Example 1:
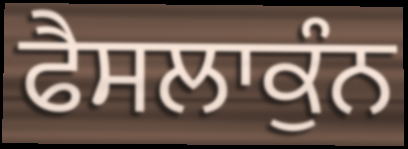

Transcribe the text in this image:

ਫੈਸਲਾਕੁੰਨ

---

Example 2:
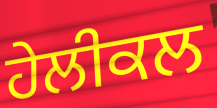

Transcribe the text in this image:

ਹੇਲੀਕਲ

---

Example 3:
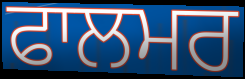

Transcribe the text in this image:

ਫਾਲਮਰ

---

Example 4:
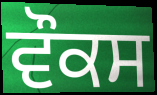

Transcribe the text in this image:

ਵੌਕਸ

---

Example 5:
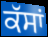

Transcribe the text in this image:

ਕੱਸਾਂ